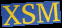
XSM